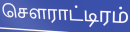
சௌராட்டிரம்